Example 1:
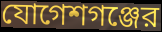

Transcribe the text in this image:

যোগেশগঞ্জের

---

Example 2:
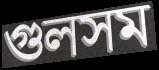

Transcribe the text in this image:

গুলসম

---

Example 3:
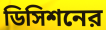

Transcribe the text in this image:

ডিসিশনের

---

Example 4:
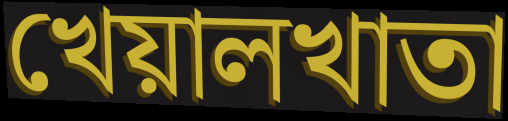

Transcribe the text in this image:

খেয়ালখাতা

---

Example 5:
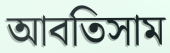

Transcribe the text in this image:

আবতিসাম